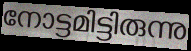
നോട്ടമിട്ടിരുന്നു